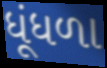
ધૂંધળા